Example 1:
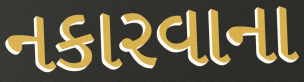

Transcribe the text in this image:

નકારવાના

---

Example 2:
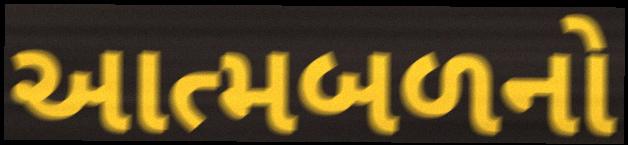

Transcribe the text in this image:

આત્મબળનો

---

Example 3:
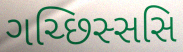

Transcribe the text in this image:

ગચ્છિસ્સસિ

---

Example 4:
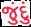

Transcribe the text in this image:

જુંદું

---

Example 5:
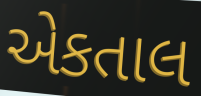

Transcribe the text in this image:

એકતાલ